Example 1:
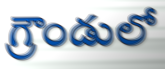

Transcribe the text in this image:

గ్రౌండులో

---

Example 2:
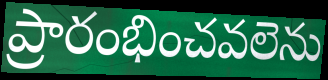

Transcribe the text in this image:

ప్రారంభించవలెను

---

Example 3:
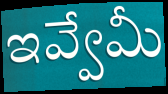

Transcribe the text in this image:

ఇవ్వేమీ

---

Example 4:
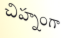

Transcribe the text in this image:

చిహ్నంగా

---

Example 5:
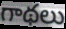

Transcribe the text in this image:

గాథలు